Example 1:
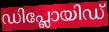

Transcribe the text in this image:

ഡിപ്ലോയിഡ്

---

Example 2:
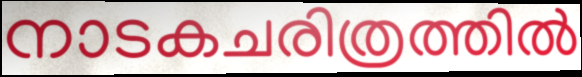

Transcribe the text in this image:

നാടകചരിത്രത്തിൽ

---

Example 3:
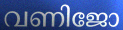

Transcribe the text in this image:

വണിജോ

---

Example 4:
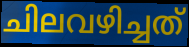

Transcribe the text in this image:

ചിലവഴിച്ചത്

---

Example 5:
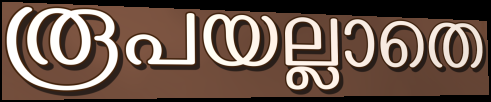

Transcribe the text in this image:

രൂപയല്ലാതെ